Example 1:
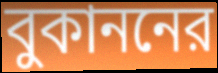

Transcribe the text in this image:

বুকাননের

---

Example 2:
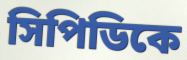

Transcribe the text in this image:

সিপিডিকে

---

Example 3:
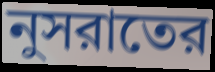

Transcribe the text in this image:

নুসরাতের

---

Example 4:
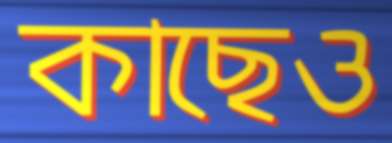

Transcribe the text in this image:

কাছেও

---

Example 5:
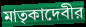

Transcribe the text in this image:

মাতৃকাদেবীর